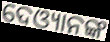
ଦେଓ୍ୟାନଙ୍କ